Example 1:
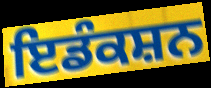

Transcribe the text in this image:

ਇਡੰਕਸ਼ਨ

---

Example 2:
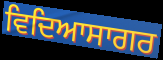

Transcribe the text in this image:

ਵਿਦਿਆਸਾਗਰ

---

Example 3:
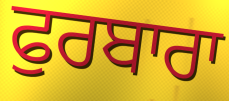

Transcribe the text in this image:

ਫੁਰਬਾਰਾ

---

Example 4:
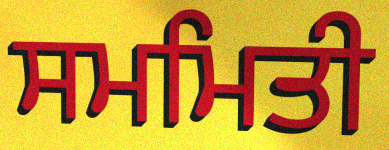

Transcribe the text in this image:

ਸਮਮਿਤੀ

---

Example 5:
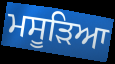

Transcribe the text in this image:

ਮਸੂੜਿਆ